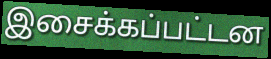
இசைக்கப்பட்டன